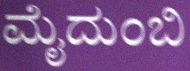
ಮೈದುಂಬಿ